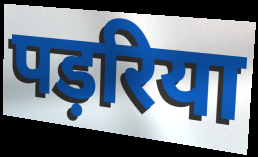
पड़रिया